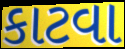
કાટવા